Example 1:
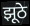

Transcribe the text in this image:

झूठे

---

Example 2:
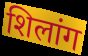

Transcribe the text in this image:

शिलांग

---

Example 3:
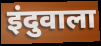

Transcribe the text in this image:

इंदुवाला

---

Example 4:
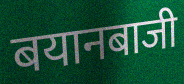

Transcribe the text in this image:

बयानबाजी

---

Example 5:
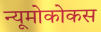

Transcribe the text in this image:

न्यूमोकोकस